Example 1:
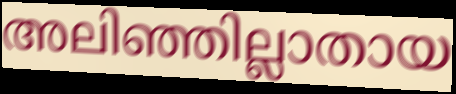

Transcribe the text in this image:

അലിഞ്ഞില്ലാതായ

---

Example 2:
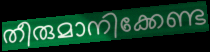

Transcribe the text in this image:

തീരുമാനിക്കേണ്ട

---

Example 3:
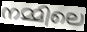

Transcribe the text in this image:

നമ്മിലെ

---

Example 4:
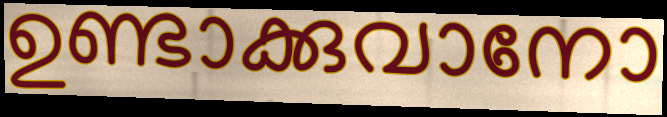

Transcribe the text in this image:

ഉണ്ടാക്കുവാനോ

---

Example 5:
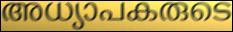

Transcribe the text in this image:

അധ്യാപകരുടെ